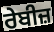
ਰੇਬੀਜ਼